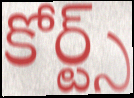
కోర్ట్స్